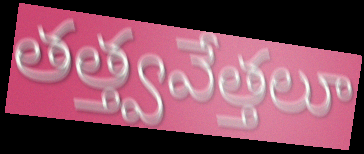
తత్త్వవేత్తలూ